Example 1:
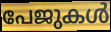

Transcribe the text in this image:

പേജുകൾ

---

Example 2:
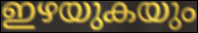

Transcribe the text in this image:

ഇഴയുകയും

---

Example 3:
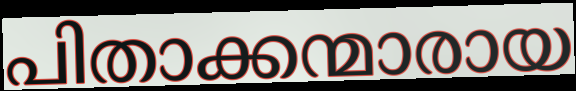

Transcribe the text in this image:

പിതാക്കന്മാരായ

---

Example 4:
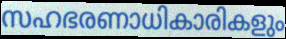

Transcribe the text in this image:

സഹഭരണാധികാരികളും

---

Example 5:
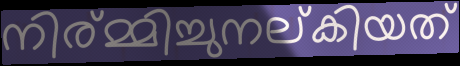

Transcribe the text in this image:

നിര്മ്മിച്ചുനല്കിയത്